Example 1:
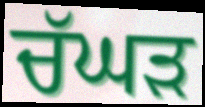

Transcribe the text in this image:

ਚੱਘੜ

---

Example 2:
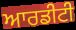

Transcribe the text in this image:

ਆਰਡੀਟੀ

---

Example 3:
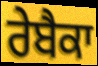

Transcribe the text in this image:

ਰੇਬੈਕਾ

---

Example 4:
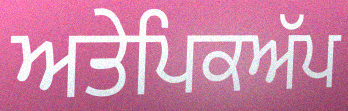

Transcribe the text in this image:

ਅਤੇਪਿਕਅੱਪ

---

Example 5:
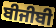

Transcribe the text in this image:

ਬੀਜੀਬੀ